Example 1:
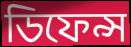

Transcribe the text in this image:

ডিফেন্স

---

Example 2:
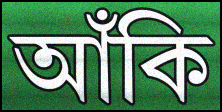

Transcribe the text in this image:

আঁকি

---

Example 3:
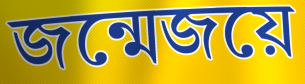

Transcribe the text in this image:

জন্মেজয়ে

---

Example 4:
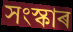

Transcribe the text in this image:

সংস্কাৰ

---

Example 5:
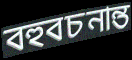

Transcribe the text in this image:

বহুবচনান্ত